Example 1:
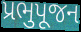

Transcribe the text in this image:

પ્રભુપૂજન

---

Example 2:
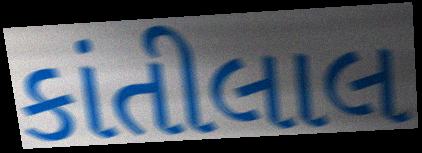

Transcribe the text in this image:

કાંતીલાલ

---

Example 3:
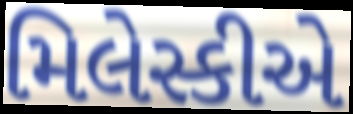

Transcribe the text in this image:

મિલેસ્કીએ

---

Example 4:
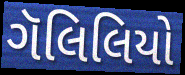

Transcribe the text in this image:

ગૅલિલિયો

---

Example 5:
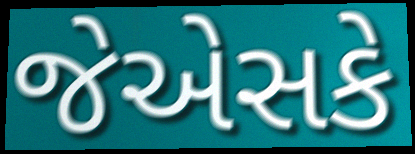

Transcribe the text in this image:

જેએસકે